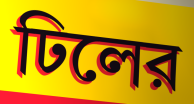
ঢিলের